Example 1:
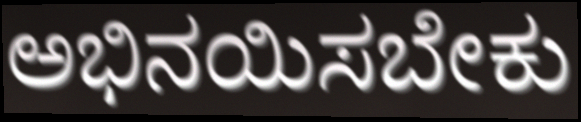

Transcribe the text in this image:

ಅಭಿನಯಿಸಬೇಕು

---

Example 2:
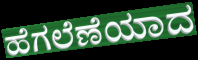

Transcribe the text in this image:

ಹೆಗಲೆಣೆಯಾದ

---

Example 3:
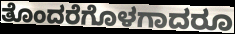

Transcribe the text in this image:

ತೊಂದರೆಗೊಳಗಾದರೂ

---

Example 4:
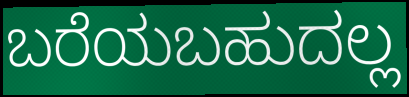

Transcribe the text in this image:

ಬರೆಯಬಹುದಲ್ಲ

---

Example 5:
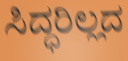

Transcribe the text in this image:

ಸಿದ್ಧರಿಲ್ಲದ